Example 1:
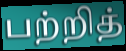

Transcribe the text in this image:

பற்றித்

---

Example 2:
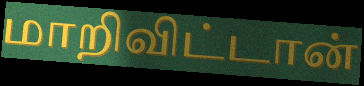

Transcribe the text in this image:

மாறிவிட்டான்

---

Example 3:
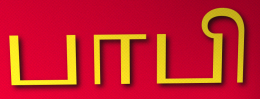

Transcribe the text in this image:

பாபி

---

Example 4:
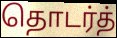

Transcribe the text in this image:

தொடர்த்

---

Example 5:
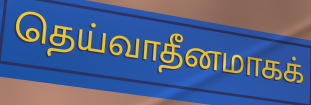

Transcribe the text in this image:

தெய்வாதீனமாகக்